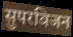
सुपरविजन